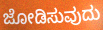
ಜೋಡಿಸುವುದು